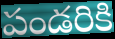
పండరికి